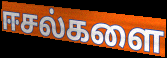
ஈசல்களை